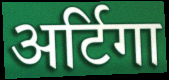
अर्टिगा